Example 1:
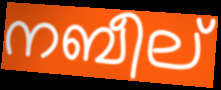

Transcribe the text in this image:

നബീല്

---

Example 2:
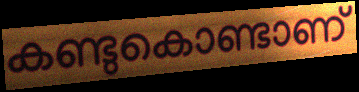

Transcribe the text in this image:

കണ്ടുകൊണ്ടാണ്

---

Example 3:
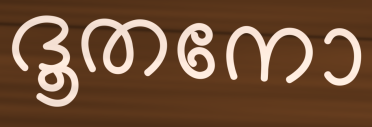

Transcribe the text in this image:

ദൂതനോ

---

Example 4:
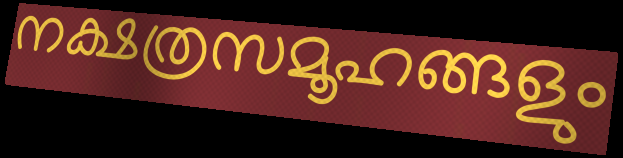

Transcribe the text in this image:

നക്ഷത്രസമൂഹങ്ങളും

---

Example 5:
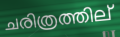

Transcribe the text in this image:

ചരിത്രത്തില്